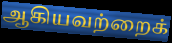
ஆகியவற்றைக்